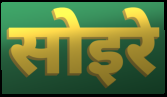
सोइरे